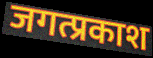
जगत्प्रकाश